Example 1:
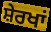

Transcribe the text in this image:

ਸ਼ੇਰਖਾਂ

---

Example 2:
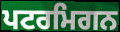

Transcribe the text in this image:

ਪਟਰਮਿਗਨ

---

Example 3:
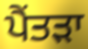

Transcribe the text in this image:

ਪੈਂਤੜਾ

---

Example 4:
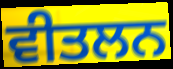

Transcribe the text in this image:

ਵੀਤਲਨ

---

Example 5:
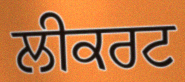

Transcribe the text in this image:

ਲੀਕਰਟ